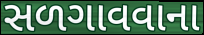
સળગાવવાના